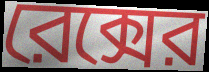
রেক্সের